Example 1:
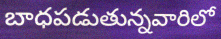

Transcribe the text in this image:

బాధపడుతున్నవారిలో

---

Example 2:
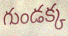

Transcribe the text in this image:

గుండక్క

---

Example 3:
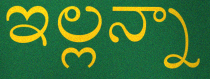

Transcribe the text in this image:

ఇల్లన్నా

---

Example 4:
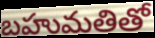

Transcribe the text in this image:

బహుమతితో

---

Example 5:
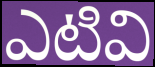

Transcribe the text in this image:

ఎటివి